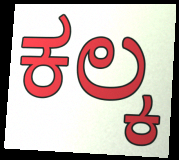
ಕಲ್ಕ